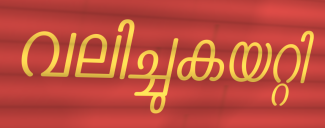
വലിച്ചുകയറ്റി